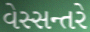
વેસ્સન્તરે